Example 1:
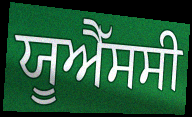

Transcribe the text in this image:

ਯੂਐੱਸਸੀ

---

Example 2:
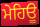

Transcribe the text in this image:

ਮੇਹਿਊ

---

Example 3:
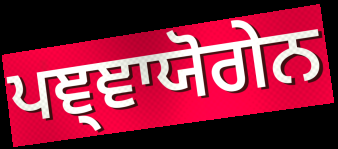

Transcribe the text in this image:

ਪਞ੍ਞਾਯੋਗੇਨ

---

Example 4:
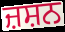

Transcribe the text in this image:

ਜ਼ਸ਼ਨ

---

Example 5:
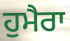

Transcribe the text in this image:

ਹੁਮੈਰਾ